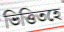
ভিত্তিতহে